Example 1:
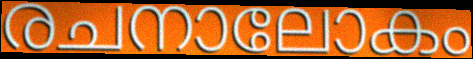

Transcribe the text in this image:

രചനാലോകം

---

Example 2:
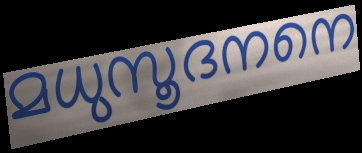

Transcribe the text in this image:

മധുസൂദനനെ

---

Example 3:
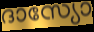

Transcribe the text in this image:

ദാസ്യോ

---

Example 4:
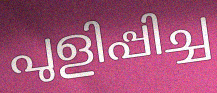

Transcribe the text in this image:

പുളിപ്പിച്ച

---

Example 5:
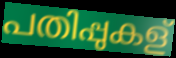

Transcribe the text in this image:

പതിപ്പുകള്